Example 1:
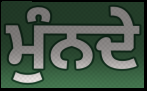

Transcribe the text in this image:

ਮੁੰਨਦੇ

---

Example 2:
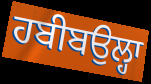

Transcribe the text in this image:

ਹਬੀਬਉਲ੍ਹਾ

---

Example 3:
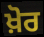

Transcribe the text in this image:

ਖ਼ੋਰ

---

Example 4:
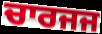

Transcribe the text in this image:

ਚਾਰਜਜ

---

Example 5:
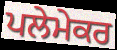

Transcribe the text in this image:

ਪਲੇਮੇਕਰ